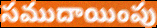
సముదాయింపు